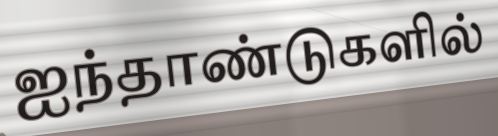
ஐந்தாண்டுகளில்